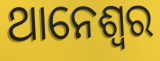
ଥାନେଶ୍ୱର